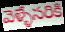
వెళ్ళేసరికి